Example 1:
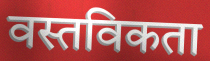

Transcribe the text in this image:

वस्तविकता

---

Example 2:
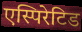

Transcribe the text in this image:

एस्पिरेटिड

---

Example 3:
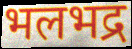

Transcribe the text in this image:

भलभद्र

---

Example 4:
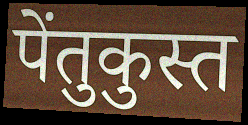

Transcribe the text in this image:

पेंतुकुस्त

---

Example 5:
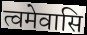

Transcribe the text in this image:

त्वमेवासि